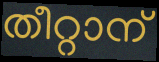
തീറ്റാന്